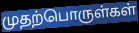
முதற்பொருள்கள்